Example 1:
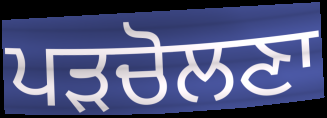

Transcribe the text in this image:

ਪੜਚੋਲਣਾ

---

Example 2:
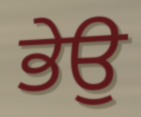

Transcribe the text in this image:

ਭੇਉ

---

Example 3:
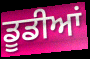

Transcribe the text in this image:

ਡੂਡੀਆਂ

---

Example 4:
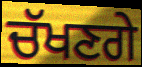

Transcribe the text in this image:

ਚੱਖਣਗੇ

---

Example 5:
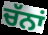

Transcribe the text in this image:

ਚੱਨਾਂ